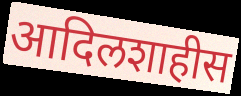
आदिलशाहीस